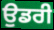
ਉਡਰੀ